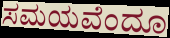
ಸಮಯವೆಂದೂ